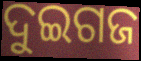
ଦୁଇଗଜ